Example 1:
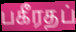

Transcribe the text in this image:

பகீரதப்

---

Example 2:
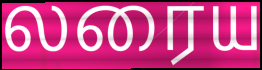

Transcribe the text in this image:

லரைய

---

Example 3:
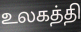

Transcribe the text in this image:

உலகத்தி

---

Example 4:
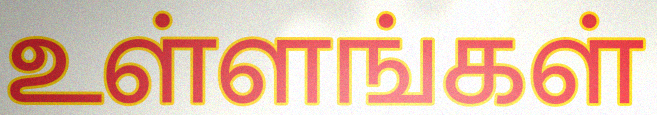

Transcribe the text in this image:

உள்ளங்கள்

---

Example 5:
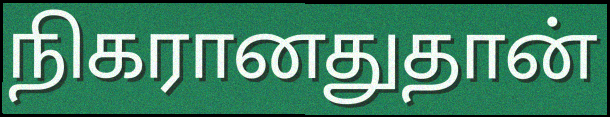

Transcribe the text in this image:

நிகரானதுதான்